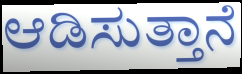
ಆಡಿಸುತ್ತಾನೆ